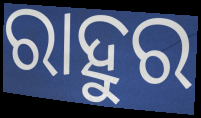
ରାହୁର